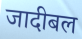
जादीबल